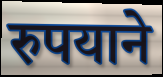
रुपयाने